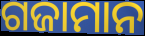
ଗଜାମାନ